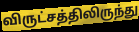
விருட்சத்திலிருந்து